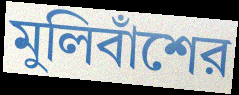
মুলিবাঁশের